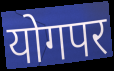
योगपर